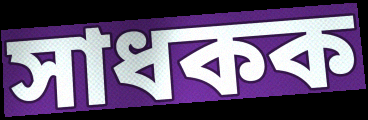
সাধকক